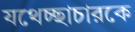
যথেচ্ছাচারকে